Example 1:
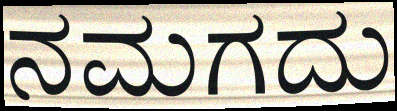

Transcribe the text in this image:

ನಮಗದು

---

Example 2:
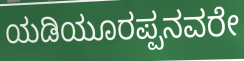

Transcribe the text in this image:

ಯಡಿಯೂರಪ್ಪನವರೇ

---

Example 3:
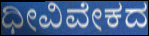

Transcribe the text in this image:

ಧೀವಿವೇಕದ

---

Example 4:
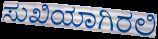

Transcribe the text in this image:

ಸುಖಿಯಾಗಿರಲಿ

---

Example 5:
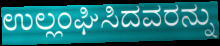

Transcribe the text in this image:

ಉಲ್ಲಂಘಿಸಿದವರನ್ನು